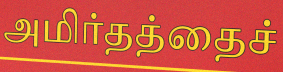
அமிர்தத்தைச்